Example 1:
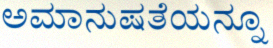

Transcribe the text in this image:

ಅಮಾನುಷತೆಯನ್ನೂ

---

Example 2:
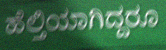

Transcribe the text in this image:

ಹೆಲ್ತಿಯಾಗಿದ್ದರೂ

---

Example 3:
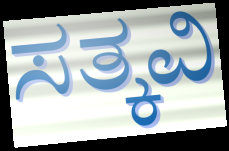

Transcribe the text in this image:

ಸತ್ಕವಿ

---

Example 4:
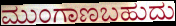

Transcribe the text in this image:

ಮುಂಗಾಣಬಹುದು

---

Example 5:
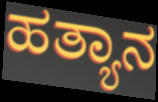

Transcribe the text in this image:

ಹತ್ಯಾನ